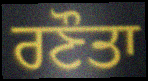
ਰਣੌਤਾ